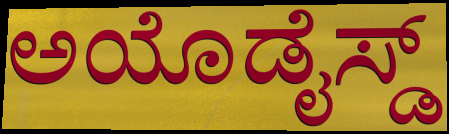
ಅಯೊಡೈಸ್ಡ್